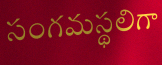
సంగమస్థలిగా